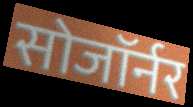
सोजॉर्नर